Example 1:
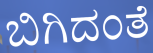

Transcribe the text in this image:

ಬಿಗಿದಂತೆ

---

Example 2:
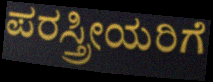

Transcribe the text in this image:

ಪರಸ್ತ್ರೀಯರಿಗೆ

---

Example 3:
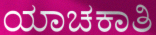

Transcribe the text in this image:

ಯಾಚಕಾತಿ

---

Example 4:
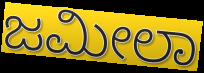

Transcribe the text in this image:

ಜಮೀಲಾ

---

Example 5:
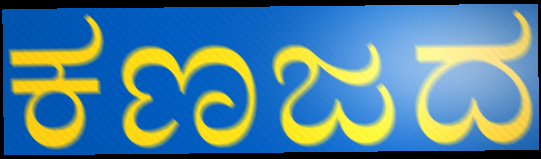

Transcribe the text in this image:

ಕಣಜದ